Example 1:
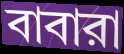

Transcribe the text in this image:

বাবারা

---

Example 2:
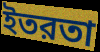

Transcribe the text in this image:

ইতরতা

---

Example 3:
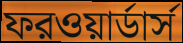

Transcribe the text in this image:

ফরওয়ার্ডার্স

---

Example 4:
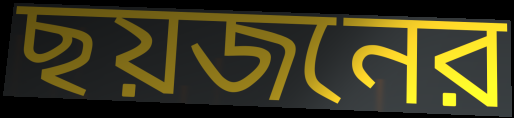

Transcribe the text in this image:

ছয়জনের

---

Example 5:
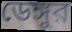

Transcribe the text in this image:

ডেঙ্গুর